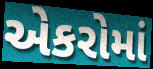
એકરોમાં